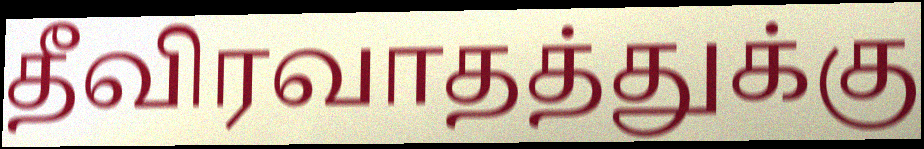
தீவிரவாதத்துக்கு